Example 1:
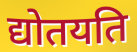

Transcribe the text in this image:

द्योतयति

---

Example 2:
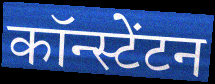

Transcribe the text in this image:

कॉन्स्टेंटन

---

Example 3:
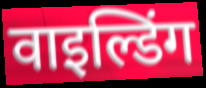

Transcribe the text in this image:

वाइल्डिंग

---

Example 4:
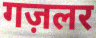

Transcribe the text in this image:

गज़लर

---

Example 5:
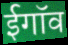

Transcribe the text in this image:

ईगॉव